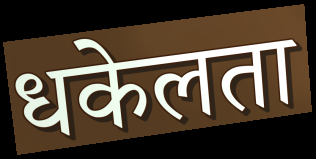
धकेलता